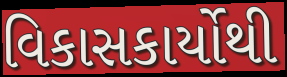
વિકાસકાર્યોથી